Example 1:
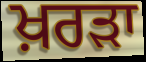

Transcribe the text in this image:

ਖ਼ਰੜਾ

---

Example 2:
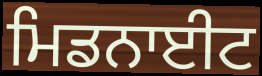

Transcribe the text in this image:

ਮਿਡਨਾਈਟ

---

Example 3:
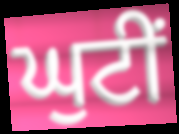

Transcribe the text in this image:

ਘੁਟੀਂ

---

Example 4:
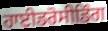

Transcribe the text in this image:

ਹਾਈਡਰੋਸੀਡਿੰਗ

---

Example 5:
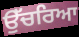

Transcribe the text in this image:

ਉੱਚਰਿਆ